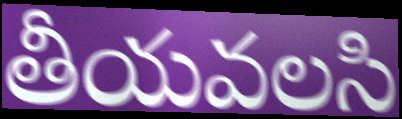
తీయవలసి